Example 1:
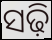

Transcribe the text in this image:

ସଢ଼ି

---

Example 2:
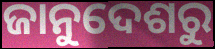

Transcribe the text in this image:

ଜାନୁଦେଶରୁ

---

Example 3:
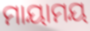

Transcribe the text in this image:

ମାୟାମୟ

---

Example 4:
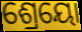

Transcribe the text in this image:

ଶ୍ରେୟୋ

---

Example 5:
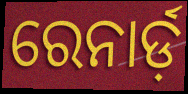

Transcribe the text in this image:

ରେନାର୍ଡ଼